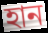
হান